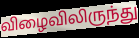
விழைவிலிருந்து